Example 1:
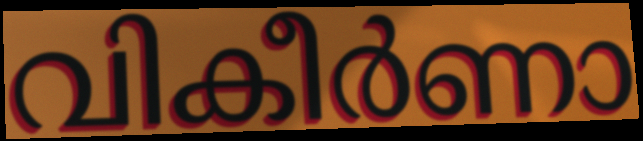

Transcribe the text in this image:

വികീർണാ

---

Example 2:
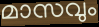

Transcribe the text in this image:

മാസവും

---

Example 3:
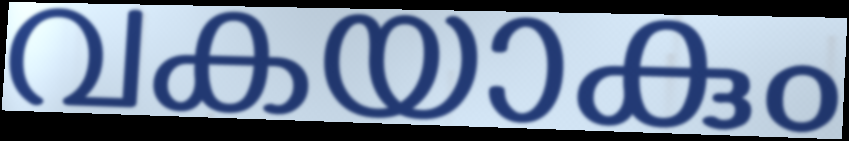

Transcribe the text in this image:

വകയാകും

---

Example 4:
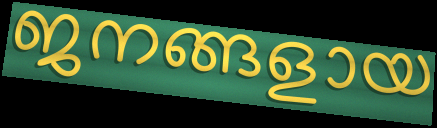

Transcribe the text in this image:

ജനങ്ങളായ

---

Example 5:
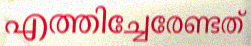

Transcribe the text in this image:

എത്തിച്ചേരേണ്ടത്